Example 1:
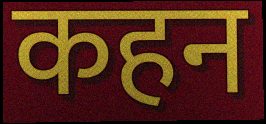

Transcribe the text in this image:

कहन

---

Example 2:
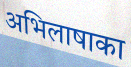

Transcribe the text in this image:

अभिलाषाका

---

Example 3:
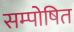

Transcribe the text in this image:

सम्पोषित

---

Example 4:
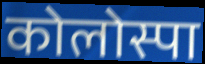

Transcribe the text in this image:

कोलोस्पा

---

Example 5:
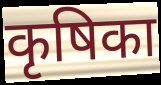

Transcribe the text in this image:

कृषिका